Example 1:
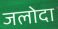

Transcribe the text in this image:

जलोदा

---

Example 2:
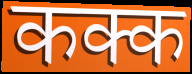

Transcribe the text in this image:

कक्क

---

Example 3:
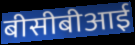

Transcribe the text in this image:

बीसीबीआई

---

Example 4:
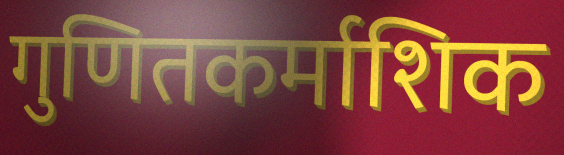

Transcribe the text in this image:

गुणितकर्माशिक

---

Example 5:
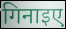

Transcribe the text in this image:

गिनाइए